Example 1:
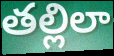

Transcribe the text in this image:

తల్లిలా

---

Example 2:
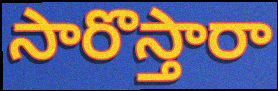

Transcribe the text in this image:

సారొస్తారా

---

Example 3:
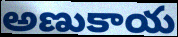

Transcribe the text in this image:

అణుకాయ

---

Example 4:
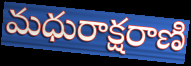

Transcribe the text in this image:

మధురాక్షరాణి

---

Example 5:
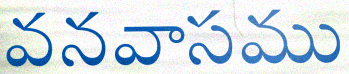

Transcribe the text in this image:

వనవాసము